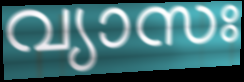
വ്യാസഃ